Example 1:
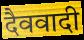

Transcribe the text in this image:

दैववादी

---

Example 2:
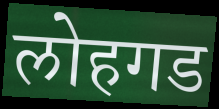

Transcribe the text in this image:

लोहगड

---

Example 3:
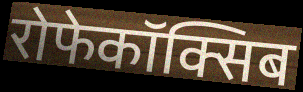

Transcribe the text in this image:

रोफेकॉक्सिब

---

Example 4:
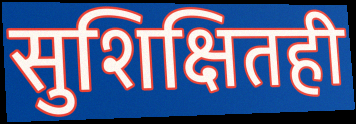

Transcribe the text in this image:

सुशिक्षितही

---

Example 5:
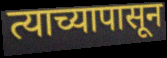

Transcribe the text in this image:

त्याच्यापासून